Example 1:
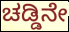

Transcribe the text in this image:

ಚಡ್ಡಿನೇ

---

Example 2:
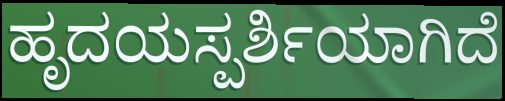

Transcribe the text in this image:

ಹೃದಯಸ್ಪರ್ಶಿಯಾಗಿದೆ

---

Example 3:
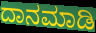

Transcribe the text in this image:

ದಾನಮಾಡಿ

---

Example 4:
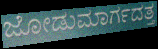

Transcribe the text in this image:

ಜೋಡುಮಾರ್ಗದತ್ತ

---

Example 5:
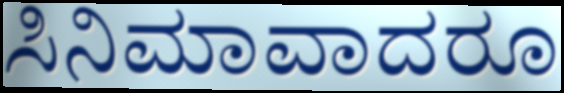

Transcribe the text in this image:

ಸಿನಿಮಾವಾದರೂ